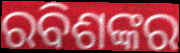
ରବିଶଙ୍କର